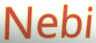
Nebi